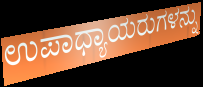
ಉಪಾಧ್ಯಾಯರುಗಳನ್ನು